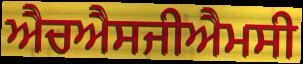
ਐਚਐਸਜੀਐਮਸੀ